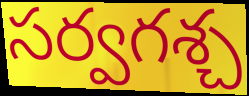
సర్వగశ్చ